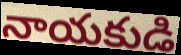
నాయకుడి